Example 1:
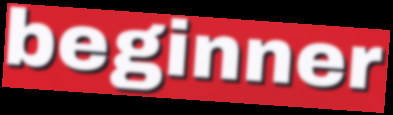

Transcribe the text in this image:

beginner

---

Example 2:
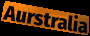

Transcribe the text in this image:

Aurstralia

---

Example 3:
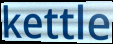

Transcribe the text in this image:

kettle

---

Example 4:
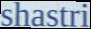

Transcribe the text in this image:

shastri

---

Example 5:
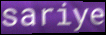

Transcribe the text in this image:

sariye